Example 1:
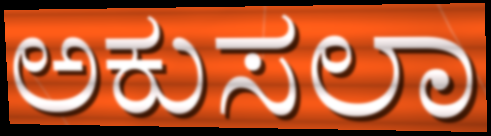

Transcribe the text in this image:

ಅಕುಸಲಾ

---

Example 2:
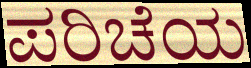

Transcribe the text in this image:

ಪರಿಚೆಯ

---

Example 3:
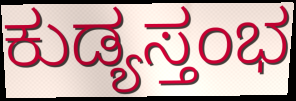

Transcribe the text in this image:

ಕುಡ್ಯಸ್ತಂಭ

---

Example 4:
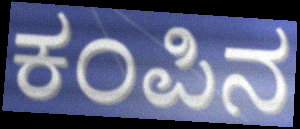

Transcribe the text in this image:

ಕಂಪಿನ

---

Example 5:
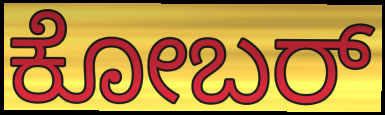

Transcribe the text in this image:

ಕೋಬರ್